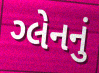
ગ્લેનનું